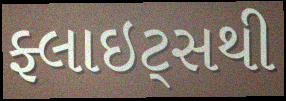
ફ્લાઇટ્સથી